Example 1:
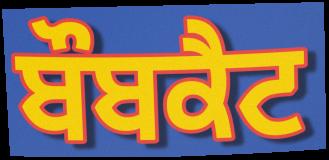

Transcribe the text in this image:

ਬੌਬਕੈਟ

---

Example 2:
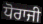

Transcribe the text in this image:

ਧੋਰਾਜੀ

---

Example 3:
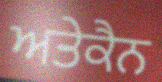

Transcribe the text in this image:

ਅਤੇਕੈਨ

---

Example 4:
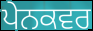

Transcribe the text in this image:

ਪੇਨਕਵਰ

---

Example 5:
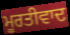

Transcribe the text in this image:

ਮੂਰਤੀਵਾਦ